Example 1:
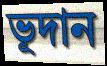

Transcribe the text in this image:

ভূদান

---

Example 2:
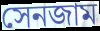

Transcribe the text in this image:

সেনজাম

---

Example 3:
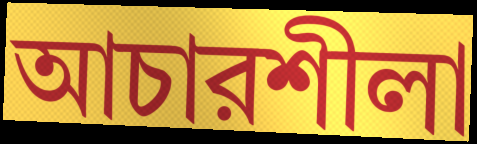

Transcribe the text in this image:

আচারশীলা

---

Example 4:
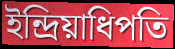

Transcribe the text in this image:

ইন্দ্রিয়াধিপতি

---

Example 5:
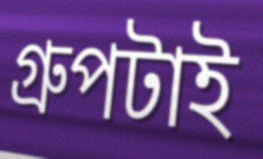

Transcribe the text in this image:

গ্রুপটাই